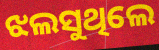
ଝଲସୁଥିଲେ